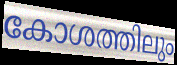
കോശത്തിലും